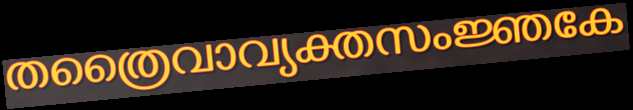
തത്രൈവാവ്യക്തസംജ്ഞകേ